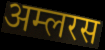
अम्लरस